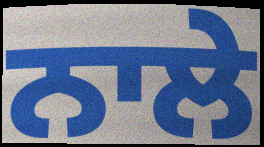
ਨਾਲੇ